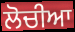
ਲੋਚੀਆ